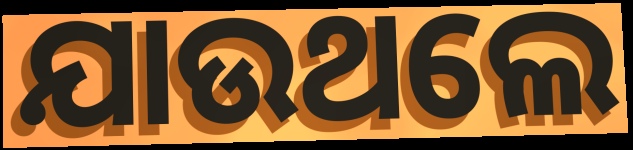
ଯାଉଥଲେ